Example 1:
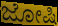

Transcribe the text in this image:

ಜೋಷಿ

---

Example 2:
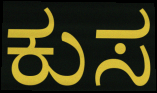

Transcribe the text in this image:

ಕುಸ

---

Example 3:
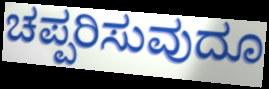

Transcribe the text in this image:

ಚಪ್ಪರಿಸುವುದೂ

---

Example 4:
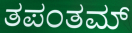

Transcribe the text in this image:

ತಪಂತಮ್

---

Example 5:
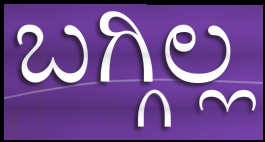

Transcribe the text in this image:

ಬಗ್ಗಿಲ್ಲ